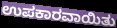
ಉಪಕಾರವಾಯಿತು